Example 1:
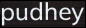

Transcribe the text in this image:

pudhey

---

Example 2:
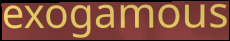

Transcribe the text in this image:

exogamous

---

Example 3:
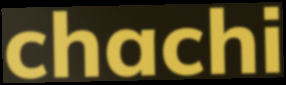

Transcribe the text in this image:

chachi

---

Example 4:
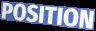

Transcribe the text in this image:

POSITION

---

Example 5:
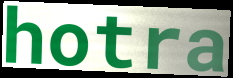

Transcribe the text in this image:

hotra